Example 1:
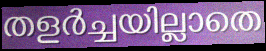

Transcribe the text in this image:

തളർച്ചയില്ലാതെ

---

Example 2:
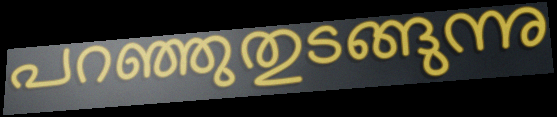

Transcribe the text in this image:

പറഞ്ഞുതുടങ്ങുന്നു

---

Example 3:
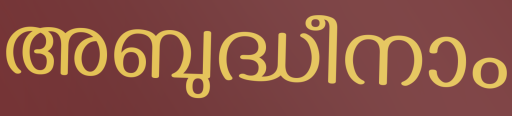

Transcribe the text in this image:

അബുദ്ധീനാം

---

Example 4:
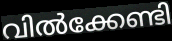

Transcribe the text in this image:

വിൽക്കേണ്ടി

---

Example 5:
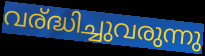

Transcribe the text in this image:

വര്ദ്ധിച്ചുവരുന്നു